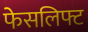
फेसलिफ्ट